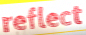
reflect